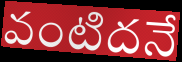
వంటిదనే